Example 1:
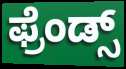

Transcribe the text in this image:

ಫ್ರೆಂಡ್ಸ್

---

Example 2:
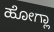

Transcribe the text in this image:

ಹೋಗ್ಲಾ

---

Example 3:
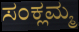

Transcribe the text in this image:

ಸಂಕ್ಲಮ್ಮ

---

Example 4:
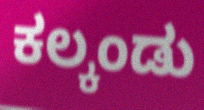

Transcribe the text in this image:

ಕಲ್ಕಂಡು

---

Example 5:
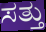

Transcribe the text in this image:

ಸತ್ತು